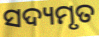
ସଦ୍ୟମୃତ